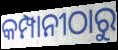
କମ୍ପାନୀଠାରୁ